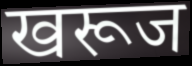
खरूज